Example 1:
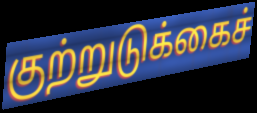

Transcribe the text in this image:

குற்றுடுக்கைச்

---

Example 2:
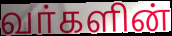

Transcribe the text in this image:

வர்களின்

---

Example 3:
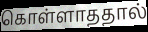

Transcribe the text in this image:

கொள்ளாததால்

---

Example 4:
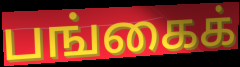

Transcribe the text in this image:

பங்கைக்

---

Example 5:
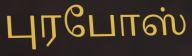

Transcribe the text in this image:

புரபோஸ்